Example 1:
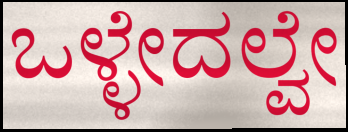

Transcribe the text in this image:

ಒಳ್ಳೇದಲ್ವೇ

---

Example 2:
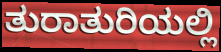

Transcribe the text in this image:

ತುರಾತುರಿಯಲ್ಲಿ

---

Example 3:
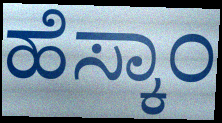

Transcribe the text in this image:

ಹೆಸ್ಕಾಂ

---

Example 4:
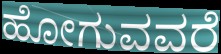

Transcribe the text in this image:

ಹೋಗುವವರೆ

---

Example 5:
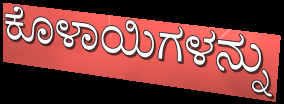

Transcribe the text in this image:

ಕೊಳಾಯಿಗಳನ್ನು